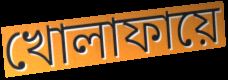
খোলাফায়ে